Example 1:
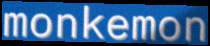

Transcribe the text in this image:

monkemon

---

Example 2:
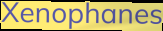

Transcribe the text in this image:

Xenophanes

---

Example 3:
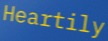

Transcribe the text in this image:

Heartily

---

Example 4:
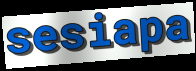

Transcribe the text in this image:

sesiapa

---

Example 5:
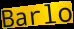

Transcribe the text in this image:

Barlo